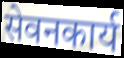
सेवनकार्य